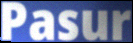
Pasur